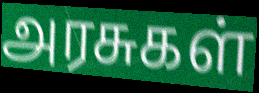
அரசுகள்